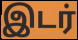
இடர்